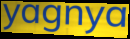
yagnya